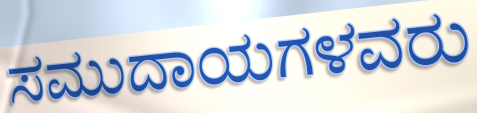
ಸಮುದಾಯಗಳವರು